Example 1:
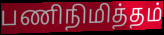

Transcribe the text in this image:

பணிநிமித்தம்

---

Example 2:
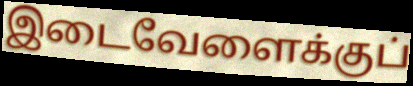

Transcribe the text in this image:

இடைவேளைக்குப்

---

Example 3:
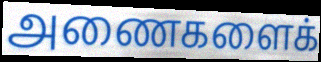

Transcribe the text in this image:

அணைகளைக்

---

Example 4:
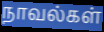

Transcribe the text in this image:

நாவல்கள்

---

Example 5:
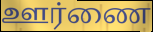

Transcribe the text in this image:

ஊர்ணை